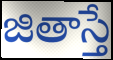
జితాస్తే